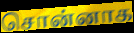
சொன்னாக